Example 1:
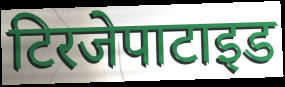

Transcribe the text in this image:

टिरजेपाटाइड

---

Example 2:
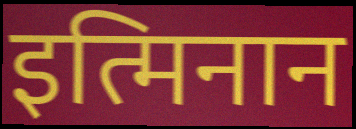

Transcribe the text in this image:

इत्मिनान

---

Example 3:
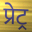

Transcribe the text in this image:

प्रेट्र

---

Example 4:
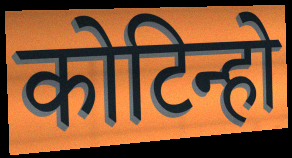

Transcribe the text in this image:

कोटिन्हो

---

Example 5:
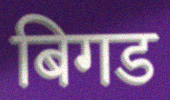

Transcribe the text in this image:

बिगड